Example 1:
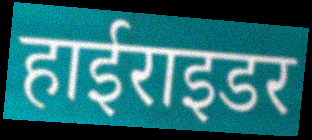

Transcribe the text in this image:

हाईराइडर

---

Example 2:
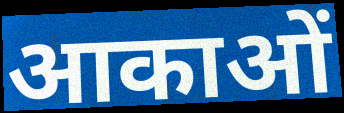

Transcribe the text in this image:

आकाओं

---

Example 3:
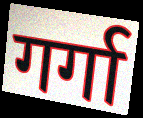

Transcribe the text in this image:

गर्गा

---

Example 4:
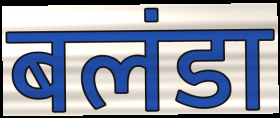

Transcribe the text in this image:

बलंडा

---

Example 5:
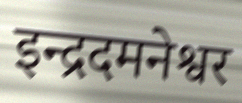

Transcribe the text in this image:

इन्द्रदमनेश्वर